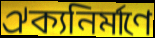
ঐক্যনির্মাণে